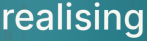
realising